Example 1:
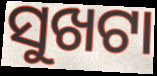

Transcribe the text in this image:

ସୁଖଟା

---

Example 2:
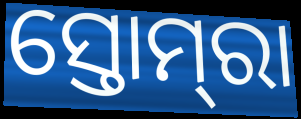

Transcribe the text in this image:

ସ୍ତୋମ୍‌ରା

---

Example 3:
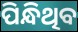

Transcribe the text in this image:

ପିନ୍ଧିଥିବ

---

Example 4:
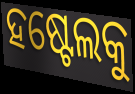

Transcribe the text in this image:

ହଷ୍ଟେଲକୁ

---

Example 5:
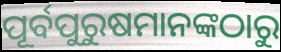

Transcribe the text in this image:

ପୂର୍ବପୁରୁଷମାନଙ୍କଠାରୁ